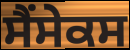
ਸੈਂਸੇਕਸ